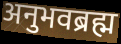
अनुभवब्रह्म